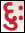
દુઃ